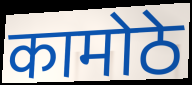
कामोठे